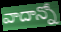
వాదాన్నో